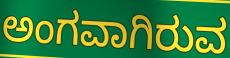
ಅಂಗವಾಗಿರುವ